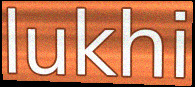
lukhi